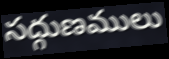
సద్గుణములు